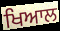
ਖਿਆਲ